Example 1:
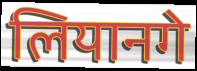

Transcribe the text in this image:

लियानगे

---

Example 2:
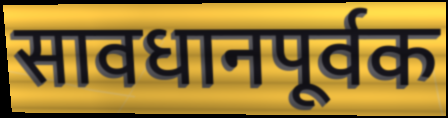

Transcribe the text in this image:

सावधानपूर्वक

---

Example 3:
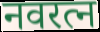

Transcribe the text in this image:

नवरत्न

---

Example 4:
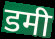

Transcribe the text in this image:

डमी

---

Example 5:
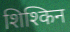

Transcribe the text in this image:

शिश्किन